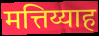
मत्तिय्याह